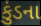
કુંડના